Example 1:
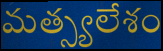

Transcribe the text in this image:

మత్స్యలేశం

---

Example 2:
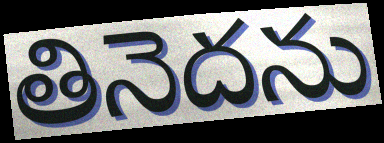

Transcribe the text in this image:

తినెదను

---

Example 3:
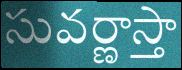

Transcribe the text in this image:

సువర్ణాస్తా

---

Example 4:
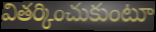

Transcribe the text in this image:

వితర్కించుకుంటూ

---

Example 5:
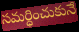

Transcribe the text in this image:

సమర్ధించుకునే